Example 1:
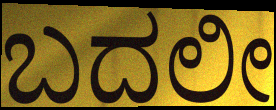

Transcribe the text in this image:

ಬದಲೀ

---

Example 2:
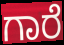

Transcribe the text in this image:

ಗಾರೆ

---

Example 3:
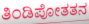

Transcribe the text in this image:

ತಿಂಡಿಪೋತತನ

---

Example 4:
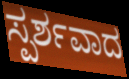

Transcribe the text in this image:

ಸ್ಪರ್ಶವಾದ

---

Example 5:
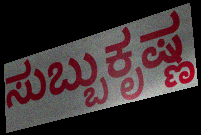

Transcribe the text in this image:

ಸುಬ್ಬುಕೃಷ್ಣ